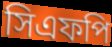
সিএফপি